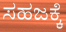
ಸಹಜಕ್ಕೆ